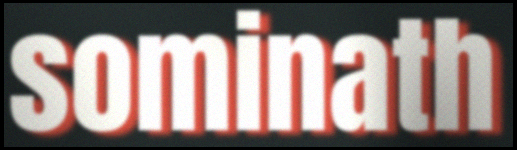
sominath